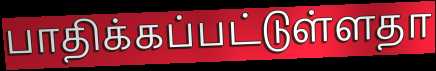
பாதிக்கப்பட்டுள்ளதா